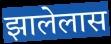
झालेलास